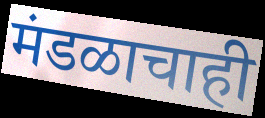
मंडळाचाही